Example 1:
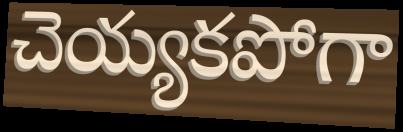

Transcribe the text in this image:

చెయ్యకపోగా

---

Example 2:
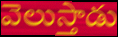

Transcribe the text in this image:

వెలుస్తాడు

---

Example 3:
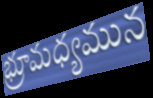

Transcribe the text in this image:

భ్రూమధ్యమున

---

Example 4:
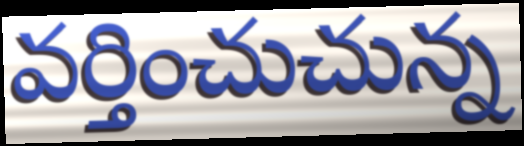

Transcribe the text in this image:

వర్తించుచున్న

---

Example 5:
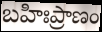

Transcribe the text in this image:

బహిఃప్రాణం